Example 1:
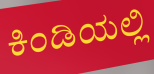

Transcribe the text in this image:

ಕಿಂಡಿಯಲ್ಲಿ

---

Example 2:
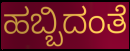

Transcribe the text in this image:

ಹಬ್ಬಿದಂತೆ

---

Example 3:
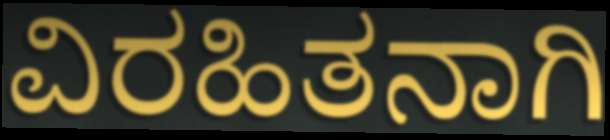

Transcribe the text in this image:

ವಿರಹಿತನಾಗಿ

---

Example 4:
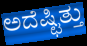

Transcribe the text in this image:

ಅದೆಷ್ಟಿತ್ತು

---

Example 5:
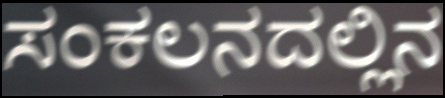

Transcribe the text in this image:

ಸಂಕಲನದಲ್ಲಿನ